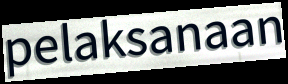
pelaksanaan